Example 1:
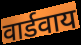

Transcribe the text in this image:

वार्डवाय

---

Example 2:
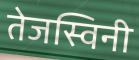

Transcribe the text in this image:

तेजस्विनी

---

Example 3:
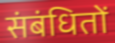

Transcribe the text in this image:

संबंधितों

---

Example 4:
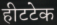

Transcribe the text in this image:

हीटटेक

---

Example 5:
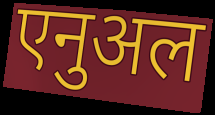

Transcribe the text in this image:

एनुअल